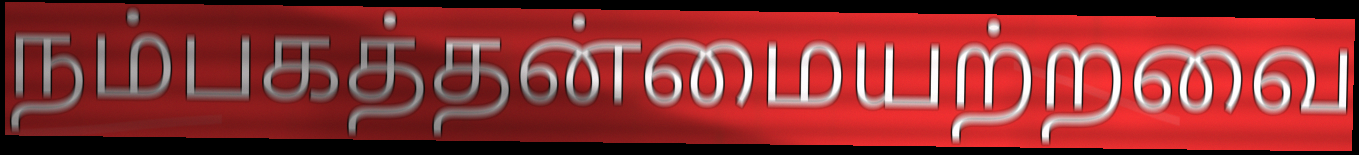
நம்பகத்தன்மையற்றவை